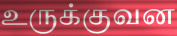
உருக்குவன